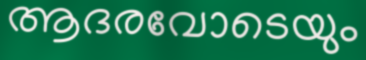
ആദരവോടെയും